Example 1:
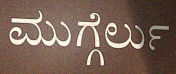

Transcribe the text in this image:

ಮುಗ್ಗೆರ್ಲು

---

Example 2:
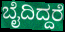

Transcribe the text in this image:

ಬೈದಿದ್ದರೆ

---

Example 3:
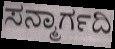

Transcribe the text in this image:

ಸನ್ಮಾರ್ಗದಿ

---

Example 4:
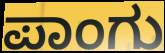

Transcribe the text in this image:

ಪಾಂಗು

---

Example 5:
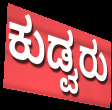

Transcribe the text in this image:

ಕುಡ್ವರು